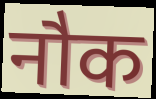
नौक